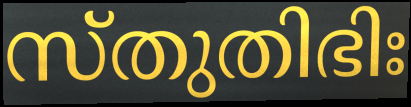
സ്തുതിഭിഃ